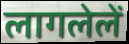
लागलेलें